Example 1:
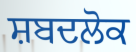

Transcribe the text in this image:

ਸ਼ਬਦਲੋਕ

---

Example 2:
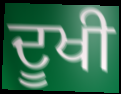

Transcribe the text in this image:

ਦੂਖੀ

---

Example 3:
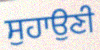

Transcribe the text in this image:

ਸੁਹਾਉਣੀ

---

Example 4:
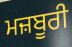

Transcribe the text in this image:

ਮਜ਼ਬੂਰੀ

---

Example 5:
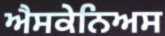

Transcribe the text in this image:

ਐਸਕੇਨਿਅਸ